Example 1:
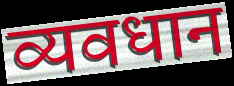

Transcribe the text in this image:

व्यवधान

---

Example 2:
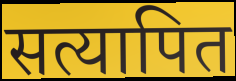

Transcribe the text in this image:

सत्यापित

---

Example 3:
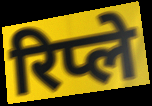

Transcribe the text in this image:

रिप्ले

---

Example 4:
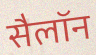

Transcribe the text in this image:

सैलॉन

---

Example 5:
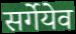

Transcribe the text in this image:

सर्गेयेव